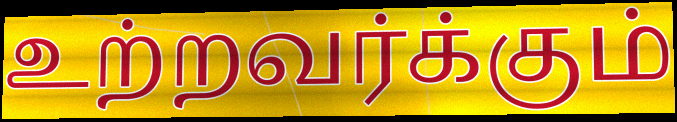
உற்றவர்க்கும்